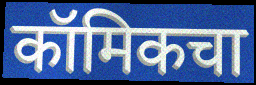
कॉमिकचा